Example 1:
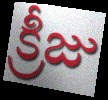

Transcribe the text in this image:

క్రీజు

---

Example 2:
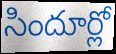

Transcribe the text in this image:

సిందూర్లో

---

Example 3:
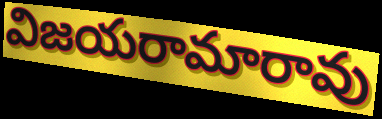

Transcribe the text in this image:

విజయరామారావు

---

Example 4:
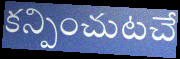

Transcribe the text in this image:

కన్పించుటచే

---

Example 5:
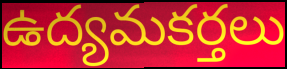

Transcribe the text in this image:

ఉద్యమకర్తలు